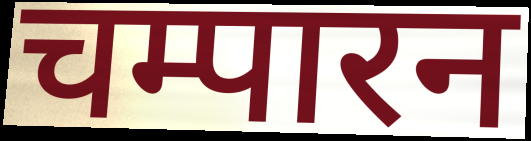
चम्पारन